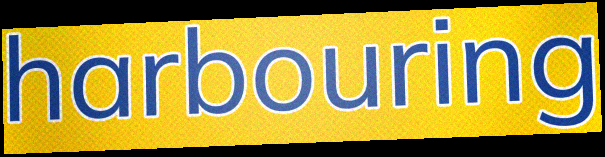
harbouring